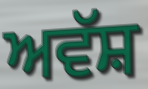
ਅਵੱਸ਼